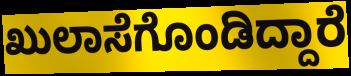
ಖುಲಾಸೆಗೊಂಡಿದ್ದಾರೆ